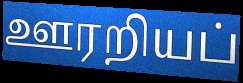
ஊரறியப்